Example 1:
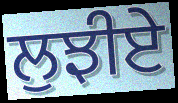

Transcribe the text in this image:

ਲੁਝੀਏ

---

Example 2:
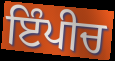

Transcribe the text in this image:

ਇੰਪੀਚ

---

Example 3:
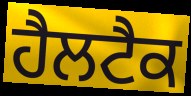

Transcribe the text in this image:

ਹੈਲਟੈਕ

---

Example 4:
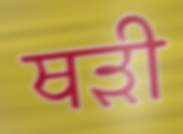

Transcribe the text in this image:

ਥੜੀ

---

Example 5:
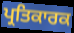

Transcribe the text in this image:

ਪ੍ਰਤਿਕਾਰਕ